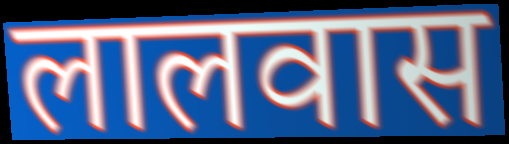
लालवास